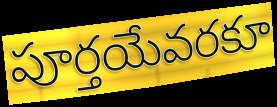
పూర్తయేవరకూ